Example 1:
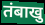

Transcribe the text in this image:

तंबाखु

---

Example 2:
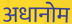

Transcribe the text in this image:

अधानोम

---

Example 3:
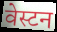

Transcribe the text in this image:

वेस्टन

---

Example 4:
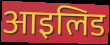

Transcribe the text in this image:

आइलिड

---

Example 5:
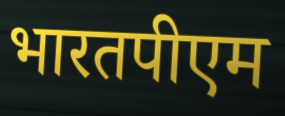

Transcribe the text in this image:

भारतपीएम